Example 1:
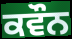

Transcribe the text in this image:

ਕਵੌਨ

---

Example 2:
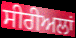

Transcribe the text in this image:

ਸੀਰੀਅਲਾਂ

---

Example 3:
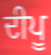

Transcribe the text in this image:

ਦੀਪੂ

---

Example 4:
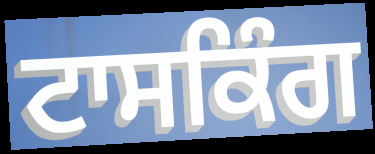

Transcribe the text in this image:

ਟਾਸਕਿੰਗ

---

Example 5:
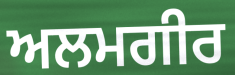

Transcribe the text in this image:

ਅਲਮਗੀਰ